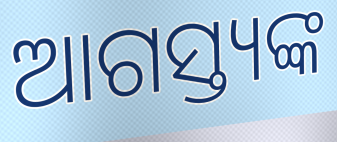
ଆଗସ୍ତ୍ୟଙ୍କ